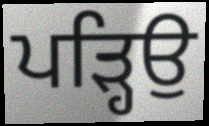
ਪੜ੍ਹਿਉ